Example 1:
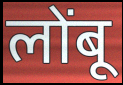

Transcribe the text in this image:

लोंबू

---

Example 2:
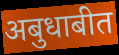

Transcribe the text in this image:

अबुधाबीत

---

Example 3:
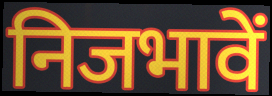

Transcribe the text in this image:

निजभावें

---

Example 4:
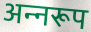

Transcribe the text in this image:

अन्नरूप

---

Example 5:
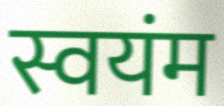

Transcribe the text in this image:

स्वयंम